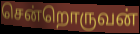
சென்றொருவன்